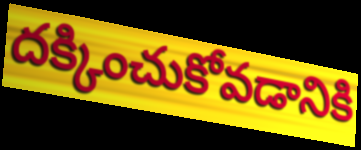
దక్కించుకోవడానికి